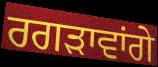
ਰਗੜਾਵਾਂਗੇ